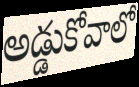
అడ్డుకోవాలో